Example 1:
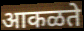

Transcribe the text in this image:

आकळते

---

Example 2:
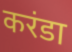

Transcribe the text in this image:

करंडा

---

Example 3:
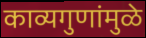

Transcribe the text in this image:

काव्यगुणांमुळे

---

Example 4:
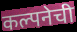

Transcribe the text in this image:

कल्पनेची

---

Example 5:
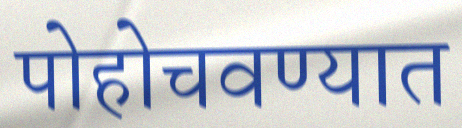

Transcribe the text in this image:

पोहोचवण्यात